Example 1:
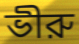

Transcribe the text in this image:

ভীরু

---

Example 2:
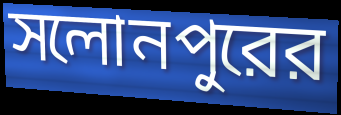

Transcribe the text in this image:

সলোনপুরের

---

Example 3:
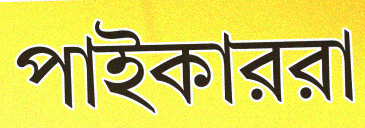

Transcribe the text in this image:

পাইকাররা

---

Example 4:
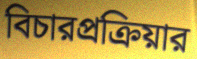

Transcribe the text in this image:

বিচারপ্রক্রিয়ার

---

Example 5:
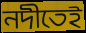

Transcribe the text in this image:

নদীতেই